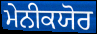
ਮੇਨੀਕਯੋਰ